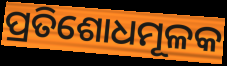
ପ୍ରତିଶୋଧମୂଳକ